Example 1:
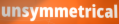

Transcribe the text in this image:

unsymmetrical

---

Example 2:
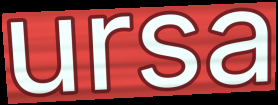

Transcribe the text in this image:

ursa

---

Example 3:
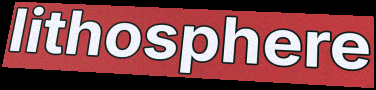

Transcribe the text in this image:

lithosphere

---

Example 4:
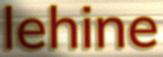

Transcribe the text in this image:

lehine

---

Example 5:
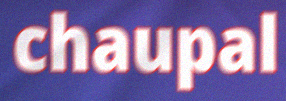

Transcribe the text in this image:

chaupal